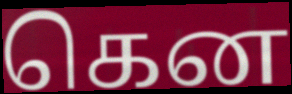
கென